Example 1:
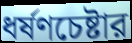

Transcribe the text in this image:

ধর্ষণচেষ্টার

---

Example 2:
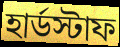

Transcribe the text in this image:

হার্ডস্টাফ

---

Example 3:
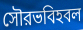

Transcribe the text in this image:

সৌরভবিহবল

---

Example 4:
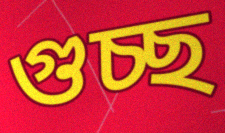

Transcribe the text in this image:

গুচ্ছ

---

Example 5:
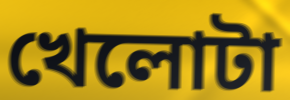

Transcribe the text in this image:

খেলোটা